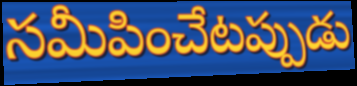
సమీపించేటప్పుడు